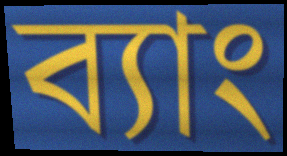
ব্যাং